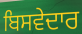
ਬਿਸਵੇਦਾਰ